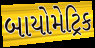
બાયોમેટ્રિક